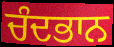
ਚੰਦਭਾਨ